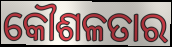
କୌଶଳତାର